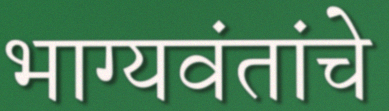
भाग्यवंतांचे